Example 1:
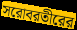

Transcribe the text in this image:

সরোবরতীরের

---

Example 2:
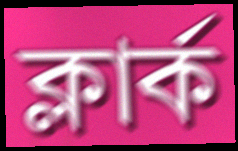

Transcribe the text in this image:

ক্লার্ক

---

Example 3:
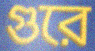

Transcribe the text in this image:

গুরে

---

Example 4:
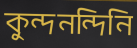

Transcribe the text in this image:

কুন্দনন্দিনি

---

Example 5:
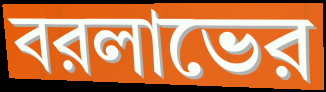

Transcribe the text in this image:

বরলাভের